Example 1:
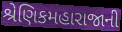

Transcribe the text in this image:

શ્રેણિકમહારાજાની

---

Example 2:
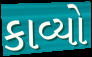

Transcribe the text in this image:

કાવ્યો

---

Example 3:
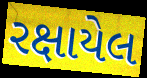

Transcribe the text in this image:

રક્ષાયેલ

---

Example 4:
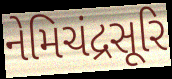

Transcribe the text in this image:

નેમિચંદ્રસૂરિ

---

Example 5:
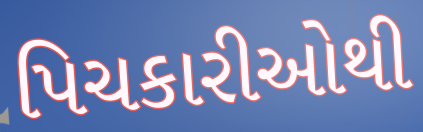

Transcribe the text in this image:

પિચકારીઓથી